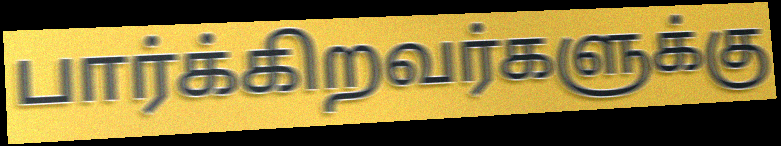
பார்க்கிறவர்களுக்கு